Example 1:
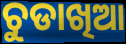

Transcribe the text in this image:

ଚୁଡାଖିଆ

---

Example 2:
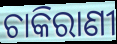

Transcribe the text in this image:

ଚାକିରାଣୀ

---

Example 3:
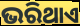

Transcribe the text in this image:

ଭରିଥାଏ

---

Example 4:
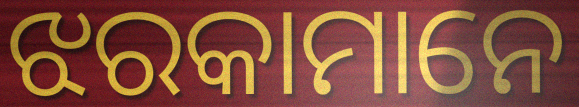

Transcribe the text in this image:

ଝରକାମାନେ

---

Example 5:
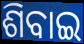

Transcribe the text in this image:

ଶିବାଇ